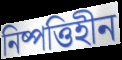
নিষ্পত্তিহীন